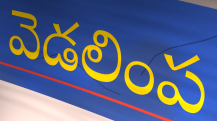
వెడలింప